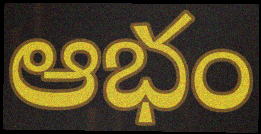
ఆభం